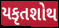
યકૃતશોથ